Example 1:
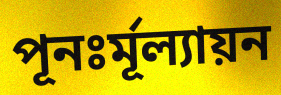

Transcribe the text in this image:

পূনঃর্মূল্যায়ন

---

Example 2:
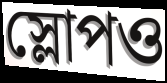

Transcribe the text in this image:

স্লোপও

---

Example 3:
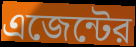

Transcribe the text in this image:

এজেন্টের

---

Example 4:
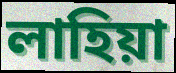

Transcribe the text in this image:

লাহিয়া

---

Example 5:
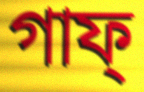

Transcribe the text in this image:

গাফ্